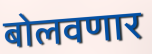
बोलवणार